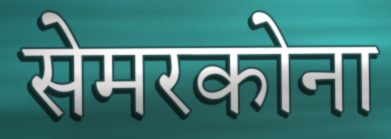
सेमरकोना